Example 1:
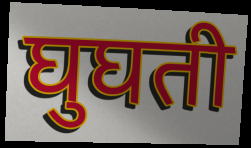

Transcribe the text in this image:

घुघती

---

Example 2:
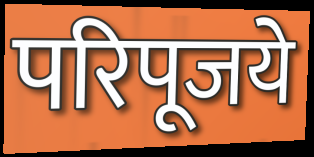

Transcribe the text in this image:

परिपूजये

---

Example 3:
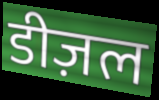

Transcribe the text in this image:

डीज़ल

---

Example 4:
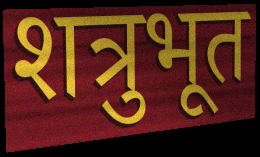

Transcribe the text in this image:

शत्रुभूत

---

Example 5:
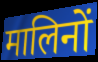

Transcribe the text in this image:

मालिनों